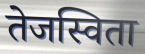
तेजस्विता